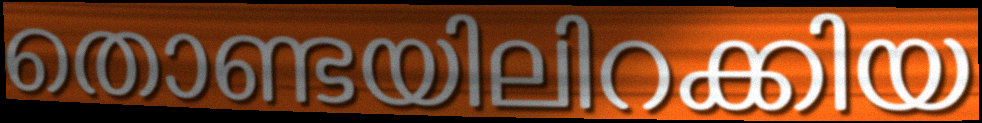
തൊണ്ടയിലിറക്കിയ